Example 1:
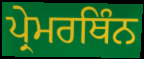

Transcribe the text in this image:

ਪ੍ਰੇਮਰਥਿੰਨ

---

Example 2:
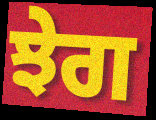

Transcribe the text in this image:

ਝੇਗ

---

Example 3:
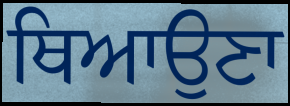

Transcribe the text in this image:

ਥਿਆਉਣਾ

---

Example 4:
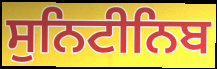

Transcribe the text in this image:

ਸੁਨਿਟੀਨਿਬ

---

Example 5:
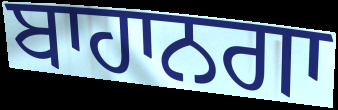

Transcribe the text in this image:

ਬਾਹਾਨਗਾ